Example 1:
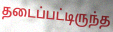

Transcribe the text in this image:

தடைப்பட்டிருந்த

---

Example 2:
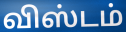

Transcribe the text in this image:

விஸ்டம்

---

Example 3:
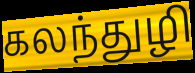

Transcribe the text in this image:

கலந்துழி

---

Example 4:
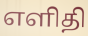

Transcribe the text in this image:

எளிதி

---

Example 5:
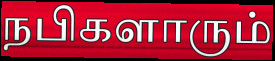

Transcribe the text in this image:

நபிகளாரும்